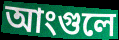
আংগুলে